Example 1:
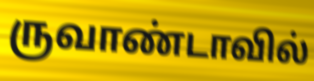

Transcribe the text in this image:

ருவாண்டாவில்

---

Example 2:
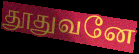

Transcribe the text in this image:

தூதுவனே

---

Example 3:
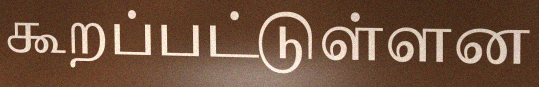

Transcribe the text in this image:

கூறப்பட்டுள்ளன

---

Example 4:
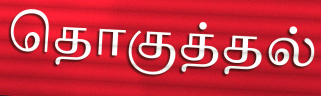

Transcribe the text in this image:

தொகுத்தல்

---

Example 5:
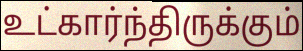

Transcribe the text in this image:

உட்கார்ந்திருக்கும்